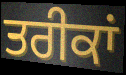
ਤਰੀਕਾਂ